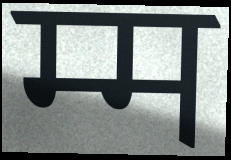
म्म